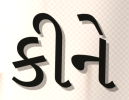
કીને